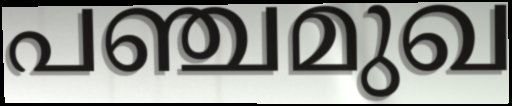
പഞ്ചമുഖ